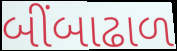
બીંબાઢાળ